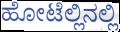
ಹೋಟೆಲ್ಲಿನಲ್ಲಿ